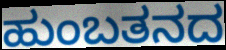
ಹುಂಬತನದ